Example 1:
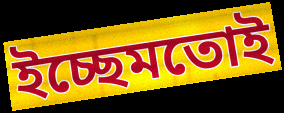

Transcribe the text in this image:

ইচ্ছেমতোই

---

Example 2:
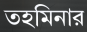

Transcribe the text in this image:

তহমিনার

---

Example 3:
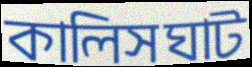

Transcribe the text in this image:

কালিসঘাট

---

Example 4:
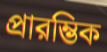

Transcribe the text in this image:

প্রারম্ভিক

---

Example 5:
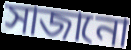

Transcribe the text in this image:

সাজানো